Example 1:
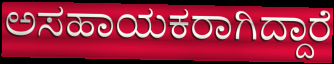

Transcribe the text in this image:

ಅಸಹಾಯಕರಾಗಿದ್ದಾರೆ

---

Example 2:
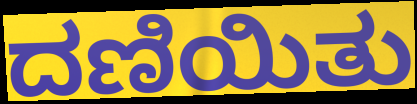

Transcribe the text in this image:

ದಣಿಯಿತು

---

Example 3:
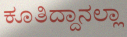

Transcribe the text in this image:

ಕೂತಿದ್ದಾನಲ್ಲಾ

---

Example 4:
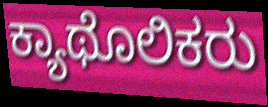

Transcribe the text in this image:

ಕ್ಯಾಥೊಲಿಕರು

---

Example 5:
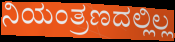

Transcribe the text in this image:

ನಿಯಂತ್ರಣದಲ್ಲಿಲ್ಲ